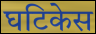
घटिकेस